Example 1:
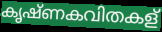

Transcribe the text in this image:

കൃഷ്ണകവിതകള്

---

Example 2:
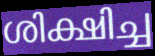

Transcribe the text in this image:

ശിക്ഷിച്ച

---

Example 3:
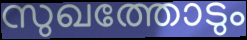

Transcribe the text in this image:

സുഖത്തോടും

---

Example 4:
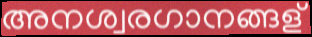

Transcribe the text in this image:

അനശ്വരഗാനങ്ങള്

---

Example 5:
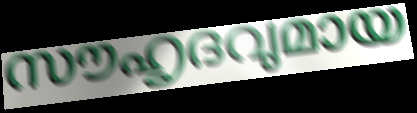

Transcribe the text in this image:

സൗഹൃദവുമായ